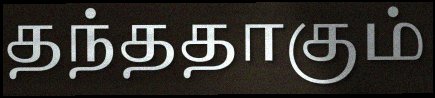
தந்ததாகும்